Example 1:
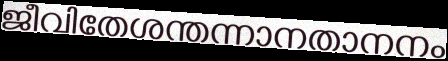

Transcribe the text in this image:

ജീവിതേശന്തന്നാനതാനനം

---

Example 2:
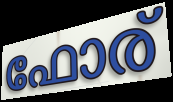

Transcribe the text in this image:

ഫോര്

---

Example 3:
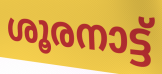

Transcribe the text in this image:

ശൂരനാട്ട്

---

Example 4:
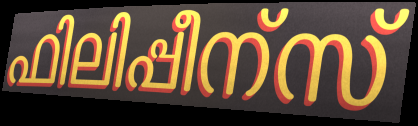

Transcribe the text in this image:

ഫിലിപ്പീന്സ്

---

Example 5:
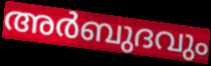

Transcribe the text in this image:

അർബുദവും